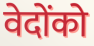
वेदोंको